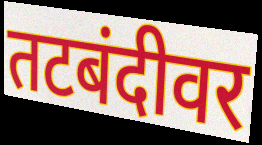
तटबंदीवर